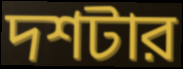
দশটার